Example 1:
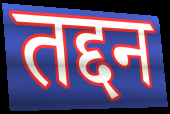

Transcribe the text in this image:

तद्दन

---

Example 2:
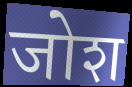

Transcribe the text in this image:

जोश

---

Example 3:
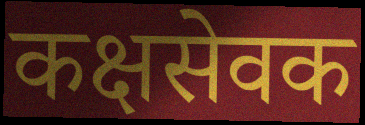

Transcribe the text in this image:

कक्षसेवक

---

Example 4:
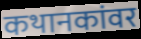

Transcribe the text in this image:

कथानकांवर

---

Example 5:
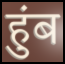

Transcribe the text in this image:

हुंब